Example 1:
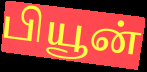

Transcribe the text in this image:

பியூன்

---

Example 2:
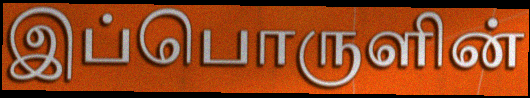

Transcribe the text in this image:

இப்பொருளின்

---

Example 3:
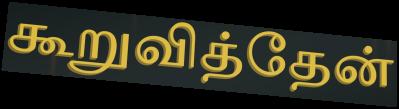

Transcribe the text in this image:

கூறுவித்தேன்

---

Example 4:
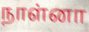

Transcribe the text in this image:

நாள்னா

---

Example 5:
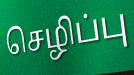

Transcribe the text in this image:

செழிப்பு